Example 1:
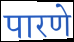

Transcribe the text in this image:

पारणे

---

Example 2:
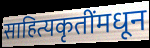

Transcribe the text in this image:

साहित्यकृतींमधून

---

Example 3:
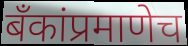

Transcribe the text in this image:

बॅंकांप्रमाणेच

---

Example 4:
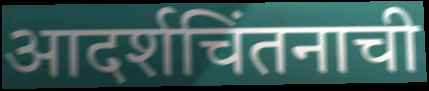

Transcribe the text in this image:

आदर्शचिंतनाची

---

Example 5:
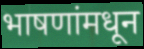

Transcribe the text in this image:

भाषणांमधून